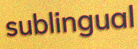
sublingual